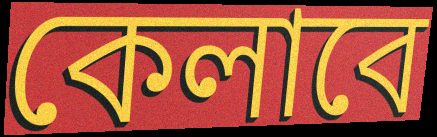
কেলাবে